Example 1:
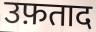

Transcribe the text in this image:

उफ़ताद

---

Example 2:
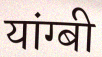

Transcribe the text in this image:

यांग्बी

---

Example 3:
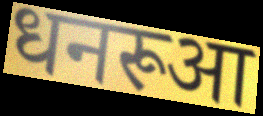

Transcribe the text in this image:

धनरूआ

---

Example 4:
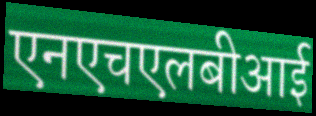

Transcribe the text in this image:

एनएचएलबीआई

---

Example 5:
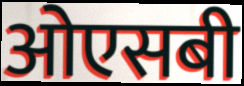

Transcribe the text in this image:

ओएसबी